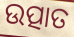
ଉତ୍ପାତ